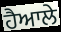
ਹੈਆਲੇ